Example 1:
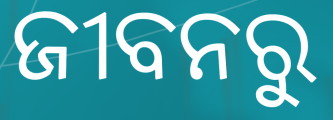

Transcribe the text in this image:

ଜୀବନରୁ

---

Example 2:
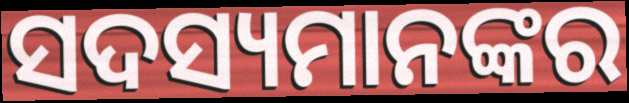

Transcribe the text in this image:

ସଦସ୍ୟମାନଙ୍କର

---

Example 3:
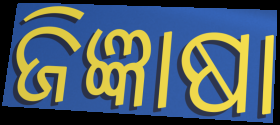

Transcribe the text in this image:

ଜିଜ୍ଞାଷା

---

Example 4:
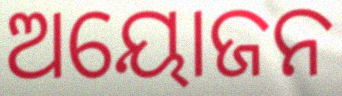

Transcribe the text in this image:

ଅୟୋଜନ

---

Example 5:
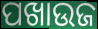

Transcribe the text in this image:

ପଖାଉଜ